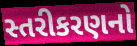
સ્તરીકરણનો